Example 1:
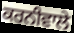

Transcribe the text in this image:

ਕਰਨੀਵਾਲੇ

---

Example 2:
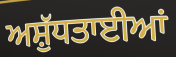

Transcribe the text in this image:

ਅਸ਼ੁੱਧਤਾਈਆਂ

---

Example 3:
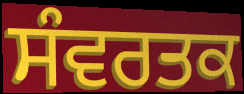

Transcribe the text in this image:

ਸੰਵਰਤਕ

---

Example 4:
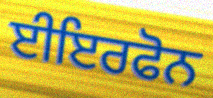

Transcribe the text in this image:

ਈਇਰਫੋਨ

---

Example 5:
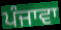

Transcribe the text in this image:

ਪੰਜਾਵਾ